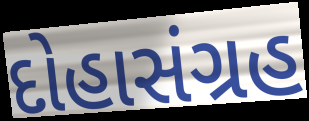
દોહાસંગ્રહ